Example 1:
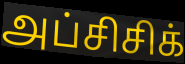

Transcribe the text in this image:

அப்சிசிக்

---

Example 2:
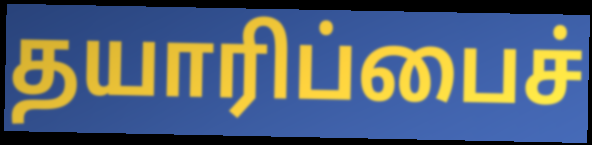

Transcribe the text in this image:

தயாரிப்பைச்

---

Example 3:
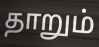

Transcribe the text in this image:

தாறும்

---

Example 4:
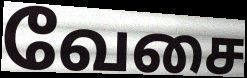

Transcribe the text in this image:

வேசை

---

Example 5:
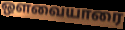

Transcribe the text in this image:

ஔவையாரை